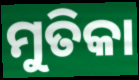
ମୁତିକା